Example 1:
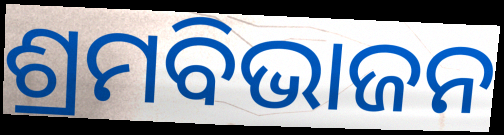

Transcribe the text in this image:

ଶ୍ରମବିଭାଜନ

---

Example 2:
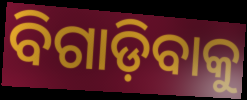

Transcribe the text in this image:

ବିଗାଡ଼ିବାକୁ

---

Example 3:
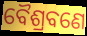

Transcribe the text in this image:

ବୈଶ୍ରବଣେ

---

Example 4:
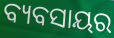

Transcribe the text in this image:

ବ୍ୟବସାୟର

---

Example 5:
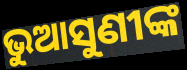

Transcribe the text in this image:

ଭୁଆସୁଣୀଙ୍କ